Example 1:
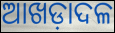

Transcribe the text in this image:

ଆଖଡ଼ାଦଳ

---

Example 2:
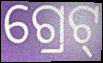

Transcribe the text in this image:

ଗ୍ରେଟ୍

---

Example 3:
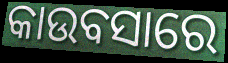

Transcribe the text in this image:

କାଉବସାରେ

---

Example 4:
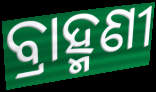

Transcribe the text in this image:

ବ୍ରାହ୍ମଣୀ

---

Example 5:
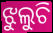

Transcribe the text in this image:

ଝୁଲୁଚି